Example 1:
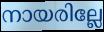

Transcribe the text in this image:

നായരില്ലേ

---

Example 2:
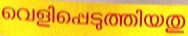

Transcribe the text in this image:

വെളിപ്പെടുത്തിയതു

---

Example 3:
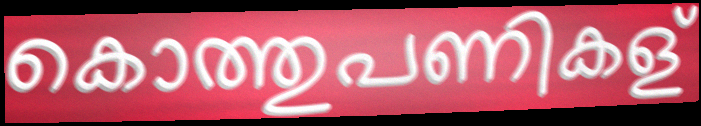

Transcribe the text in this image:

കൊത്തുപണികള്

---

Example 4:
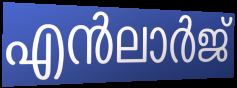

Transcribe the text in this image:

എൻലാർജ്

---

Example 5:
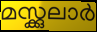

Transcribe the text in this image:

മസ്ക്കുലാർ